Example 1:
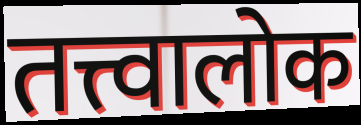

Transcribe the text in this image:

तत्त्वालोक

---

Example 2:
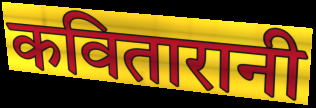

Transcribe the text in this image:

कवितारानी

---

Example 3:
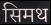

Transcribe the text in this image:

सिमथ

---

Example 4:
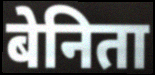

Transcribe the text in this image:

बेनिता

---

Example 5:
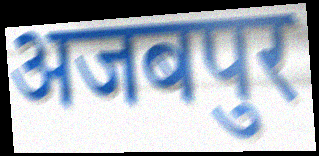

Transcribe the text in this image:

अजबपुर